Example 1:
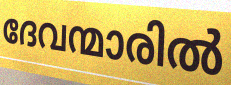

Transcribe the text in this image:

ദേവന്മാരിൽ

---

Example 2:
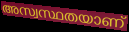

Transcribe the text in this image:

അസ്വസ്ഥതയാണ്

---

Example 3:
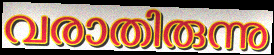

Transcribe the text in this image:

വരാതിരുന്നു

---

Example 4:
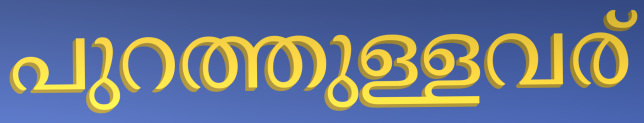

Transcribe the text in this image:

പുറത്തുള്ളവര്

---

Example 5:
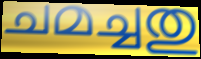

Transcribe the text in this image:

ചമച്ചതു